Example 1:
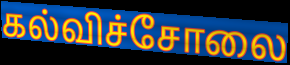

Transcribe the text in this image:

கல்விச்சோலை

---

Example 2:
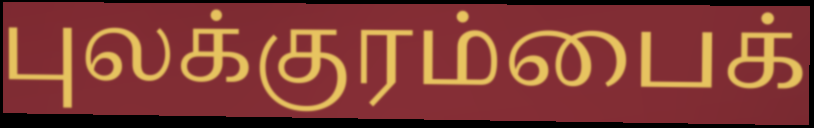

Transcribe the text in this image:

புலக்குரம்பைக்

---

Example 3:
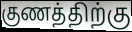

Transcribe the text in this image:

குணத்திற்கு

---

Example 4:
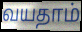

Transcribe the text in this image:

வயதாம்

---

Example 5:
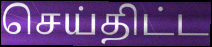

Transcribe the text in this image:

செய்திட்ட